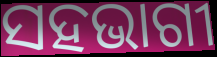
ସହଭାଗୀ